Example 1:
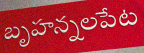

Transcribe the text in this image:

బృహన్నలపేట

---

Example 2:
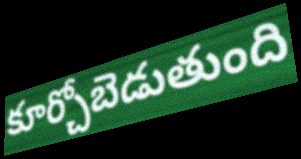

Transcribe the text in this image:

కూర్చోబెడుతుంది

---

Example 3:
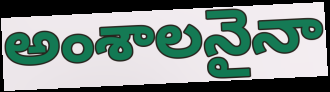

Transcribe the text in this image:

అంశాలనైనా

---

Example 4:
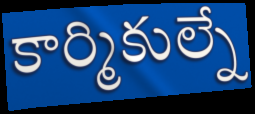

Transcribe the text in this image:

కార్మికుల్నే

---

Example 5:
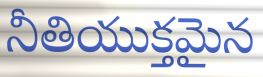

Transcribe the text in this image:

నీతియుక్తమైన